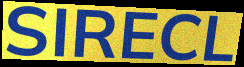
SIRECL